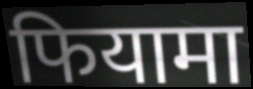
फियामा